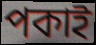
পকাই